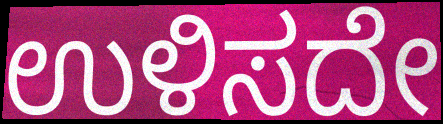
ಉಳಿಸದೇ